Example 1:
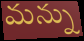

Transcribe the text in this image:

మన్ను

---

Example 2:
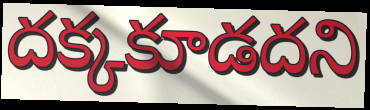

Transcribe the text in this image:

దక్కకూడదని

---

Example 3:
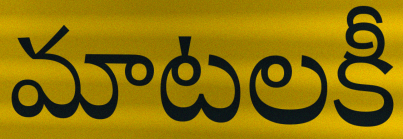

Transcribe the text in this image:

మాటలకీ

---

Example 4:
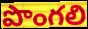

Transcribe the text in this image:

పొంగలి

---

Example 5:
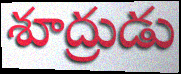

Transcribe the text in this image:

శూద్రుడు